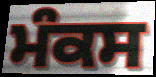
ਮੰਕਸ